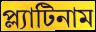
প্ল্যাটিনাম